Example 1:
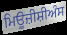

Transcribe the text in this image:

ਮਿਊਜ਼ੀਸ਼ੀਅੰਸ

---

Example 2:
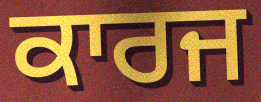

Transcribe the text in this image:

ਕਾਰਜ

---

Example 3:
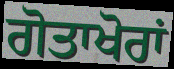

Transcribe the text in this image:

ਗੋਤਾਖੋਰਾਂ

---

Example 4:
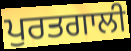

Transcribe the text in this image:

ਪੁਰਤਗਾਲੀ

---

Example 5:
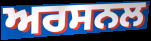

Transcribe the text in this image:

ਅਰਸਨਲ